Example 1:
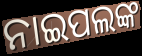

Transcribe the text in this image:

ନାଇପଲଙ୍କ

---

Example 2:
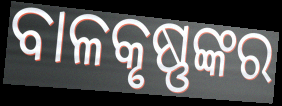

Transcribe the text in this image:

ବାଳକୃଷ୍ଣଙ୍କର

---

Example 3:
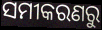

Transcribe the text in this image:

ସମୀକରଣରୁ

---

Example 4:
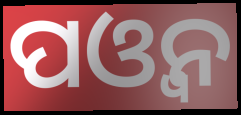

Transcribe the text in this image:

ପଓ୍ବନ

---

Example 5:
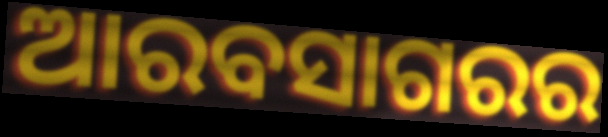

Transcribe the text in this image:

ଆରବସାଗରର